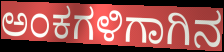
ಅಂಕಗಳಿಗಾಗಿನ